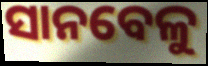
ସାନବେଳୁ